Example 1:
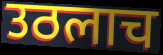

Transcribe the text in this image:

उठलाच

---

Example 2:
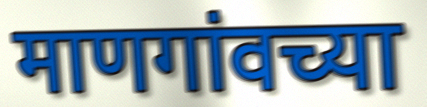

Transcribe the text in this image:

माणगांवच्या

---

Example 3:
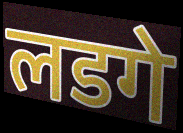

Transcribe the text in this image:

लडगे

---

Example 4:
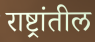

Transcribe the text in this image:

राष्ट्रांतील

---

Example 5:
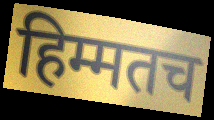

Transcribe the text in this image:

हिम्मतच